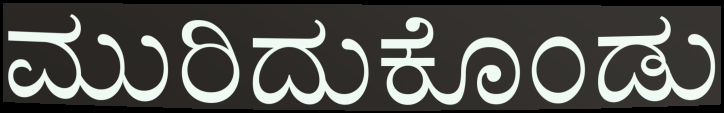
ಮುರಿದುಕೊಂಡು